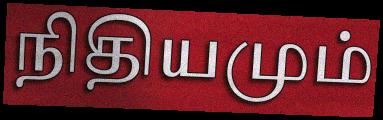
நிதியமும்